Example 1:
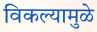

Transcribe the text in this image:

विकल्यामुळे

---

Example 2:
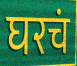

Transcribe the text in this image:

घरचं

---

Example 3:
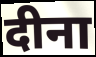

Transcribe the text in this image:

दीना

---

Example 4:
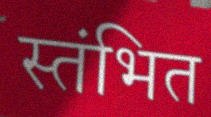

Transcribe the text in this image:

स्तंभित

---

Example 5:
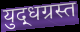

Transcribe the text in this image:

युद्धग्रस्त